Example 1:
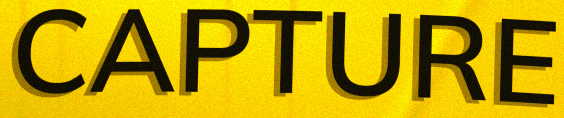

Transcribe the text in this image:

CAPTURE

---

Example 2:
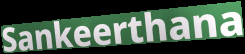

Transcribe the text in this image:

Sankeerthana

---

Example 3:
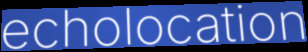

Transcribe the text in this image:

echolocation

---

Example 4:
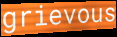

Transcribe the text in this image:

grievous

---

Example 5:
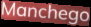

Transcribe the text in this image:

Manchego